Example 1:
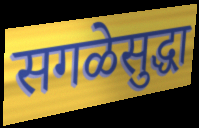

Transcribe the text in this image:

सगळेसुद्धा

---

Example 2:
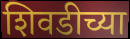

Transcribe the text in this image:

शिवडीच्या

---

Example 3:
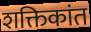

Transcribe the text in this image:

शक्तिकांत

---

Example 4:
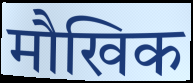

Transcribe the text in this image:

मौखिक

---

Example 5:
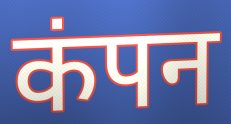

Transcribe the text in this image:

कंपन